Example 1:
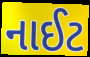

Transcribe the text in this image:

નાઈટ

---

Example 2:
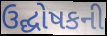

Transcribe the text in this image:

ઉદ્ઘોષકની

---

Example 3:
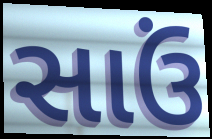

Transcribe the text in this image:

સાઉં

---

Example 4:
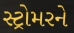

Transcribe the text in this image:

સ્ટ્રોમરને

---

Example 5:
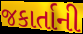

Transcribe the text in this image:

જકાર્તાની